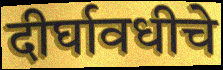
दीर्घावधीचे